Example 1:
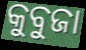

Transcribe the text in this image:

କୁବୁଜା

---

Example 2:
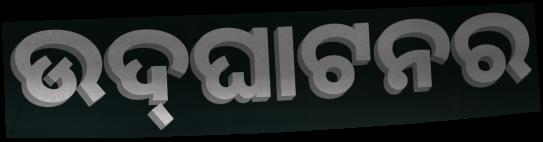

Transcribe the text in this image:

ଉଦ୍‌ଘାଟନର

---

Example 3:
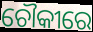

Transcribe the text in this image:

ଚୌକୀରେ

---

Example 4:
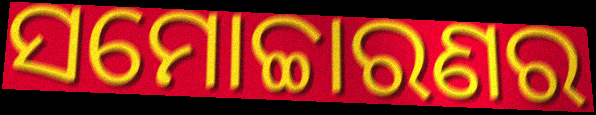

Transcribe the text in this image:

ସମୋଚ୍ଚାରଣର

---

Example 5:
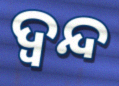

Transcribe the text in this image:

ଦ୍ଵନ୍ଦ